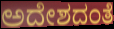
ಅದೇಶದಂತೆ